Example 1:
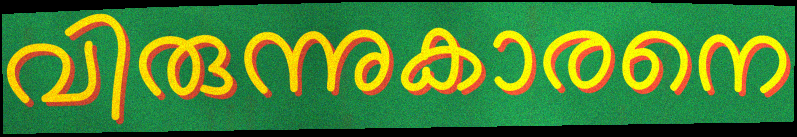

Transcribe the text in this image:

വിരുന്നുകാരനെ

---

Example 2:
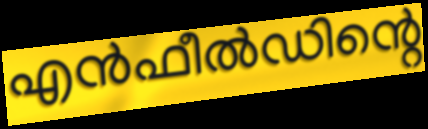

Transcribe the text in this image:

എൻഫീൽഡിന്റെ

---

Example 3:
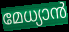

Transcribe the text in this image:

മേധ്യാൻ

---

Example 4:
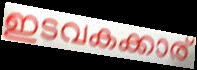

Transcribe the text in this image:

ഇടവകക്കാര്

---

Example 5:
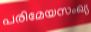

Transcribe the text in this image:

പരിമേയസംഖ്യ